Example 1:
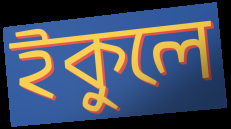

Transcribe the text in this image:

ইকুলে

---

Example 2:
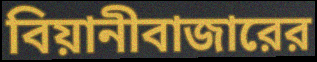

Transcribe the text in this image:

বিয়ানীবাজারের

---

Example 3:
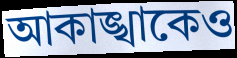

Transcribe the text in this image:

আকাঙ্খাকেও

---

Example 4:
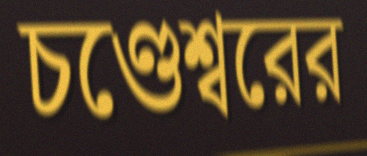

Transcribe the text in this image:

চণ্ডেশ্বরের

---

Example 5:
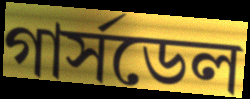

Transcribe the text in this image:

গার্সডেল